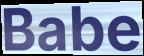
Babe